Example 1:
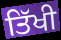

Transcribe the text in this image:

ਤਿੱਖੀ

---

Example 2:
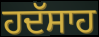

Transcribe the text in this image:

ਹਦੱਸਾਹ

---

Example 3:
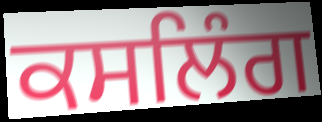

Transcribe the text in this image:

ਕਸਲਿੰਗ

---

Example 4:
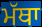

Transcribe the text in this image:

ਮੱਥਾ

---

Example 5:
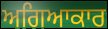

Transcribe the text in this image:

ਅਗਿਆਕਾਰ